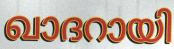
ഖാദറായി